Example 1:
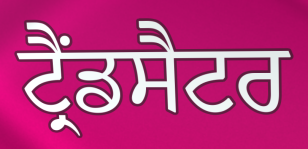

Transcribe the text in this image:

ਟ੍ਰੈਂਡਸੈਟਰ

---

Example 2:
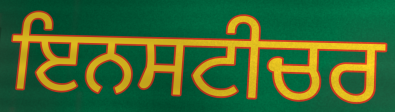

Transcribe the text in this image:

ਇਨਸਟੀਚਰ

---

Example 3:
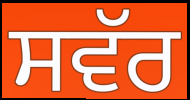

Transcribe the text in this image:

ਸਵੱਰ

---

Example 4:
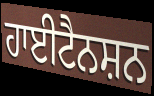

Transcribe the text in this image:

ਹਾਈਟੈਨਸ਼ਨ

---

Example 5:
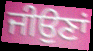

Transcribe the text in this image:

ਜੀਉਣਾਂ